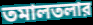
তমালতলার